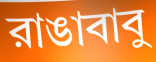
রাঙাবাবু